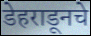
डेहराडूनचे